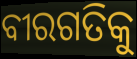
ବୀରଗତିକୁ